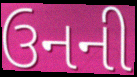
ઉનની